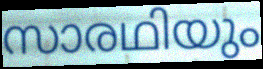
സാരഥിയും